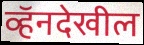
व्हॅनदेखील